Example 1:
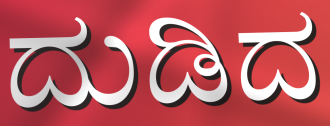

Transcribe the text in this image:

ದುಡಿದ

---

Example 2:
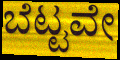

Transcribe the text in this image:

ಬೆಟ್ಟವೇ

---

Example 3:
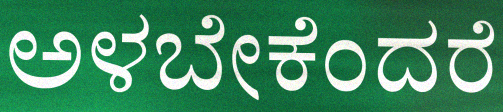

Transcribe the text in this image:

ಅಳಬೇಕೆಂದರೆ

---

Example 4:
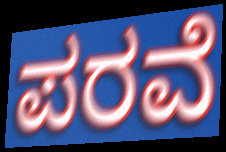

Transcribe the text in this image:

ಪರವೆ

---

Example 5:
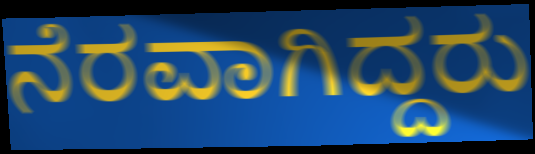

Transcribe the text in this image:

ನೆರವಾಗಿದ್ದರು